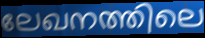
ലേഖനത്തിലെ